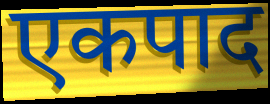
एकपाद